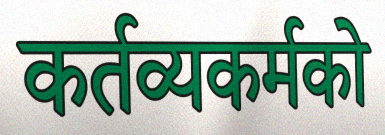
कर्तव्यकर्मको